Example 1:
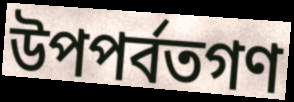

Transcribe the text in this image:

উপপর্বতগণ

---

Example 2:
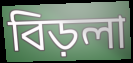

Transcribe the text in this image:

বিড়লা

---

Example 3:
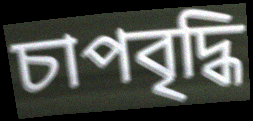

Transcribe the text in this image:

চাপবৃদ্ধি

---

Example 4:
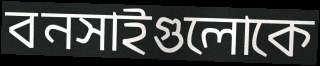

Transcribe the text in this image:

বনসাইগুলোকে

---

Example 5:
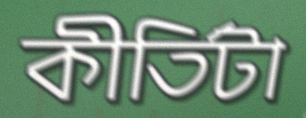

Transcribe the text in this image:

কীর্তিটা